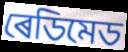
ৰেডিমেড